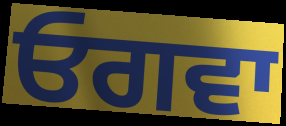
ਓਗਵਾ